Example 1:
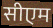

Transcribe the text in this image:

सीएम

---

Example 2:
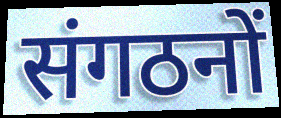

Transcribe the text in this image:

संगठनों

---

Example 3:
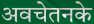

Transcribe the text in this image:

अवचेतनके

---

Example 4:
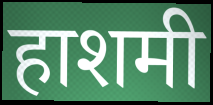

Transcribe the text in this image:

हाशमी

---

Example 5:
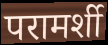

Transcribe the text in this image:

परामर्शी